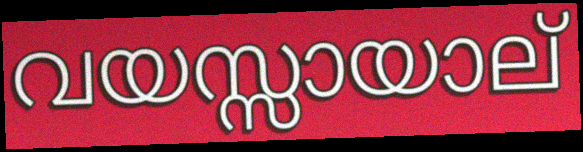
വയസ്സായാല്